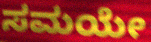
ಸಮಯೇ